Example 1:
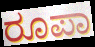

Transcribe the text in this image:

ರೂಪಾ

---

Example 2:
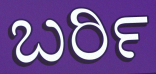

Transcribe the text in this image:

ಬರ್ರಿ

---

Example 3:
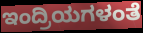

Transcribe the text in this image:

ಇಂದ್ರಿಯಗಳಂತೆ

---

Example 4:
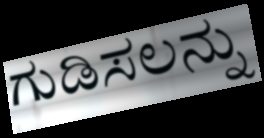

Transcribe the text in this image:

ಗುಡಿಸಲನ್ನು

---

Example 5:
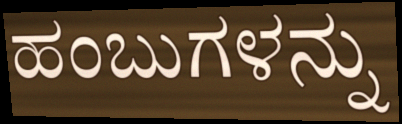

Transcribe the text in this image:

ಹಂಬುಗಳನ್ನು